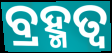
ବ୍ରହ୍ମତ୍ୱ